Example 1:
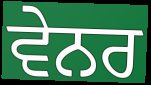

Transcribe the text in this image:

ਵੇਨਰ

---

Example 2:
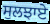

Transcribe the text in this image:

ਸੁਲਝਾਏ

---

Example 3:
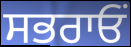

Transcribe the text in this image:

ਸਭਰਾਓਂ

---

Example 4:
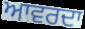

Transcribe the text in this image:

ਆਵਰਦਾ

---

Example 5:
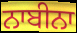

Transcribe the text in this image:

ਨਾਬੀਨਾ